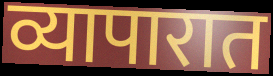
व्यापारात